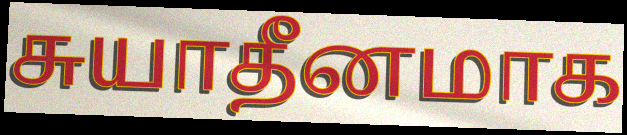
சுயாதீனமாக